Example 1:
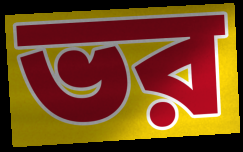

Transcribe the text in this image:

ভর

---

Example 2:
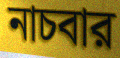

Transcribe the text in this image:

নাচবার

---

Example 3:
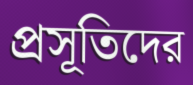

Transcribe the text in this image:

প্রসূতিদের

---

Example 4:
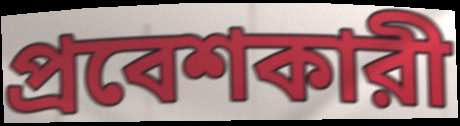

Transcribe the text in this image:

প্রবেশকারী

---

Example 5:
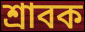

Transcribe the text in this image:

শ্রাবক